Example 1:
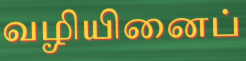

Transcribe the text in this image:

வழியினைப்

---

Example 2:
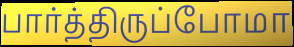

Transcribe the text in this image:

பார்த்திருப்போமா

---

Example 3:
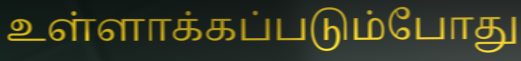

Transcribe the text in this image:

உள்ளாக்கப்படும்போது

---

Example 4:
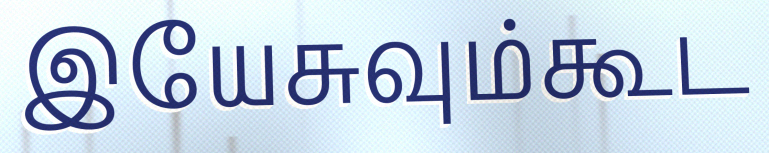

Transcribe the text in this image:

இயேசுவும்கூட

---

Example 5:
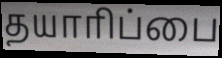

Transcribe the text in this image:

தயாரிப்பை